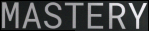
MASTERY